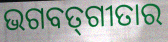
ଭଗବତ୍‍ଗୀତାର